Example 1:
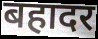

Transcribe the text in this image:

बहादर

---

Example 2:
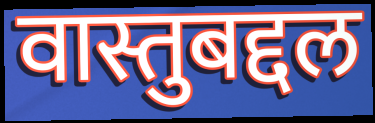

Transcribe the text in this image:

वास्तुबद्दल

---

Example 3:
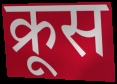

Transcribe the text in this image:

क्रूस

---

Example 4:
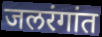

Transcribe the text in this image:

जलरंगांत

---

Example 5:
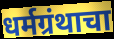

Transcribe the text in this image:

धर्मग्रंथाचा